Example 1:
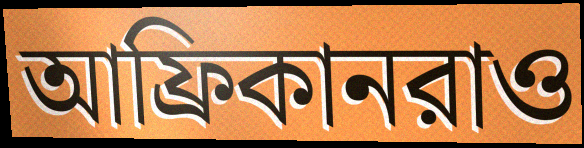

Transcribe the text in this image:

আফ্রিকানরাও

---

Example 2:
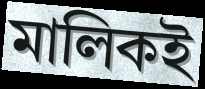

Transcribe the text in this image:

মালিকই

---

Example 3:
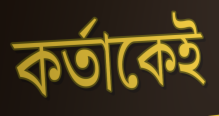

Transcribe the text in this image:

কর্তাকেই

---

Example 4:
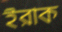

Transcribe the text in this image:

ইরাক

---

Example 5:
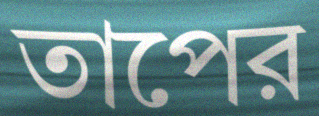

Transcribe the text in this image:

তাপের